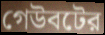
গেউবটের